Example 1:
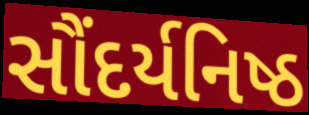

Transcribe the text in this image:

સૌંદર્યનિષ્ઠ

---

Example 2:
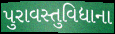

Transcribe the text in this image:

પુરાવસ્તુવિદ્યાના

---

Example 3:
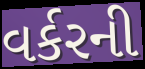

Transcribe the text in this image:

વર્કરની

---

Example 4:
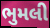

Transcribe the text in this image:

ભુમલી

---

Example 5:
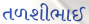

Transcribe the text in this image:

તળશીભાઈ